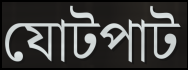
যোটপাট